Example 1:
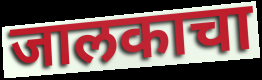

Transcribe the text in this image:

जालकाचा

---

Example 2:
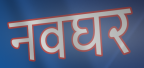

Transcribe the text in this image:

नवघर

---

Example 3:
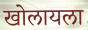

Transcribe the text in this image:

खोलायला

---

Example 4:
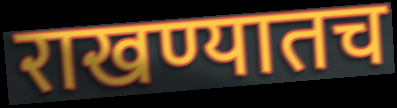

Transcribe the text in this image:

राखण्यातच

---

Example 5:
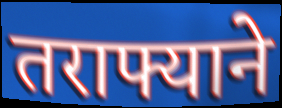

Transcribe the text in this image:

तराफ्याने